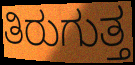
ತಿರುಗುತ್ತ